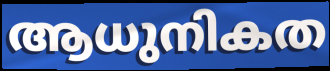
ആധുനികത